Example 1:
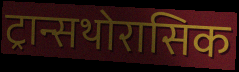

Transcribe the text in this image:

ट्रान्सथोरासिक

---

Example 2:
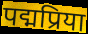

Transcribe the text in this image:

पद्मप्रिया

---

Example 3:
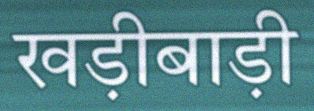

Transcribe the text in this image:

खड़ीबाड़ी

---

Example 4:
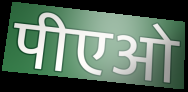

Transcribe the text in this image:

पीएओ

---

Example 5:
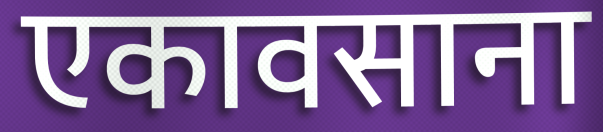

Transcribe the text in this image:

एकावसाना